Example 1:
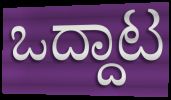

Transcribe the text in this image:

ಒದ್ದಾಟ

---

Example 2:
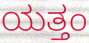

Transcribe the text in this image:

ಯತ್ತಂ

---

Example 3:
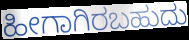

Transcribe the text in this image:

ಹೀಗಾಗಿರಬಹುದು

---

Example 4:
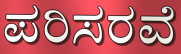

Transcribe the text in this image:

ಪರಿಸರವೆ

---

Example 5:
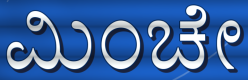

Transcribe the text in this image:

ಮಿಂಚೇ